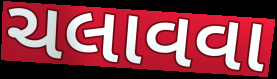
ચલાવવા